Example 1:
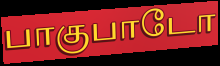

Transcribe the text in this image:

பாகுபாடோ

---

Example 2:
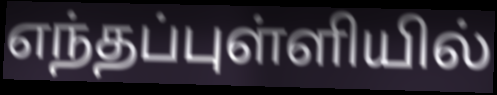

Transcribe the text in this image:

எந்தப்புள்ளியில்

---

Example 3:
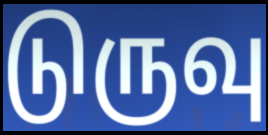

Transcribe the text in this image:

டுருவு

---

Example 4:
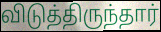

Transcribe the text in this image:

விடுத்திருந்தார்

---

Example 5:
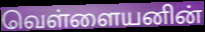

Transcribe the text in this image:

வெள்ளையனின்